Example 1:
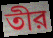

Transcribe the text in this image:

তীর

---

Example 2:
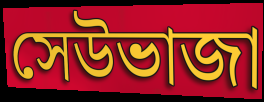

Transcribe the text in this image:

সেউভাজা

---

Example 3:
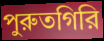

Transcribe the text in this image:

পুরুতগিরি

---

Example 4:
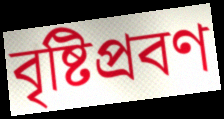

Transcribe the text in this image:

বৃষ্টিপ্রবণ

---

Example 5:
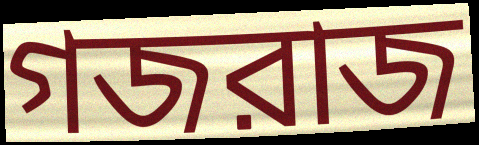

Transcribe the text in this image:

গজরাজ